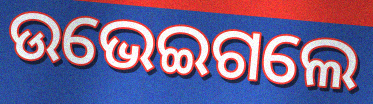
ଉଭେଇଗଲେ